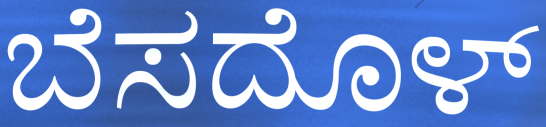
ಬೆಸದೊಳ್